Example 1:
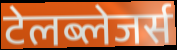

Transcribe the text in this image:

टेलब्लेजर्स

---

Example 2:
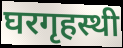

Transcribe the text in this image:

घरगृहस्थी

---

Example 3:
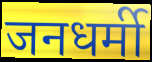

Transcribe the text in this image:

जनधर्मी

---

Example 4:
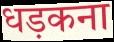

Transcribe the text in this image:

धड़कना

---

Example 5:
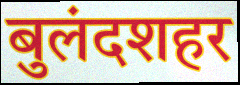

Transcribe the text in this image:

बुलंदशहर